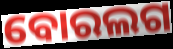
ବୋରଲଗ